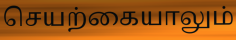
செயற்கையாலும்